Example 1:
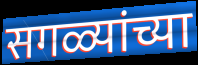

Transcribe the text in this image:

सगळ्यांच्या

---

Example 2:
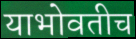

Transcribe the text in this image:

याभोवतीच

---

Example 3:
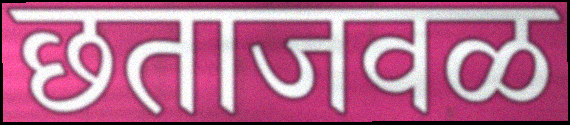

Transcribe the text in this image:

छताजवळ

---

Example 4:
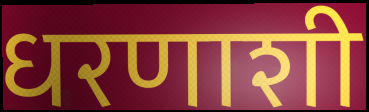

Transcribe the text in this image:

धरणाशी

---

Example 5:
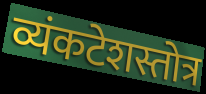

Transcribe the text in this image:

व्यंकटेशस्तोत्र